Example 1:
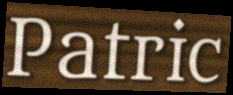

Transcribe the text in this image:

Patric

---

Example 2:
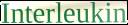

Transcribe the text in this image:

Interleukin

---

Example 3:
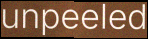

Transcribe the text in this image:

unpeeled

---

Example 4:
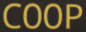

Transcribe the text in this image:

COOP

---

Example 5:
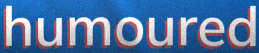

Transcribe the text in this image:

humoured